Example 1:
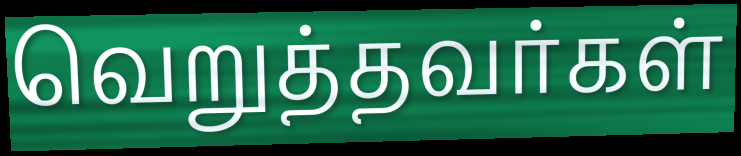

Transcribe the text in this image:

வெறுத்தவர்கள்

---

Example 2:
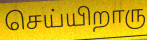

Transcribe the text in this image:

செய்யிறாரு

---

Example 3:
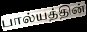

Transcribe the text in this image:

பால்யத்தின்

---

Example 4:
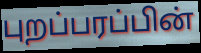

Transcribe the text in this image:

புறப்பரப்பின்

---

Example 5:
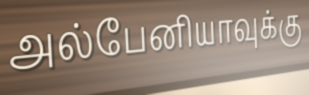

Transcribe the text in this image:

அல்பேனியாவுக்கு